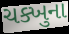
ચક્ખુના